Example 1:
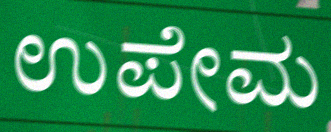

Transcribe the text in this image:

ಉಪೇಮ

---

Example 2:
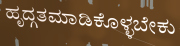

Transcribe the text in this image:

ಹೃದ್ಗತಮಾಡಿಕೊಳ್ಳಬೇಕು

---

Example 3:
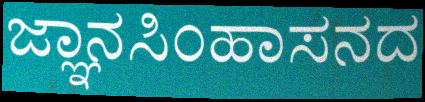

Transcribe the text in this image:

ಜ್ಞಾನಸಿಂಹಾಸನದ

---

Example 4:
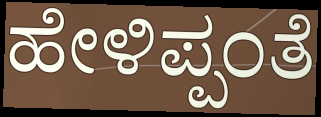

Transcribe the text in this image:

ಹೇಳಿಪ್ಪಂತೆ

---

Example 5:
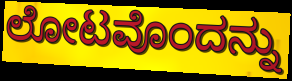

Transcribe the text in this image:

ಲೋಟವೊಂದನ್ನು